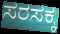
ಸರಸಕ್ಕ